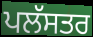
ਪਲੱਸਤਰ